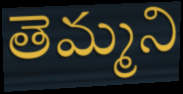
తెమ్మని